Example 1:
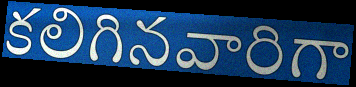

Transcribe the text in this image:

కలిగినవారిగా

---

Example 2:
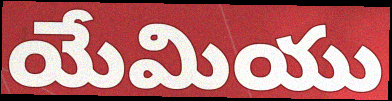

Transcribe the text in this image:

యేమియు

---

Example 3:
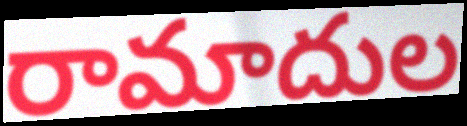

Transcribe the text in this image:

రామాదుల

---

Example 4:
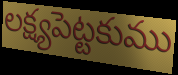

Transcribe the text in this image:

లక్ష్యపెట్టకుము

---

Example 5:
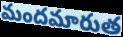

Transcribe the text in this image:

మందమారుత